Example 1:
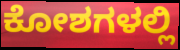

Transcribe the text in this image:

ಕೋಶಗಳಲ್ಲಿ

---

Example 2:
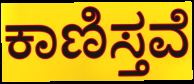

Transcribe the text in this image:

ಕಾಣಿಸ್ತವೆ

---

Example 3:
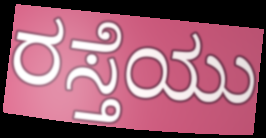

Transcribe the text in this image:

ರಸ್ತೆಯು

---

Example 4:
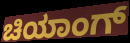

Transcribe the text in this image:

ಚಿಯಾಂಗ್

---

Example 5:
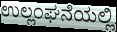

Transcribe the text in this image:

ಉಲ್ಲಂಘನೆಯಲ್ಲಿ